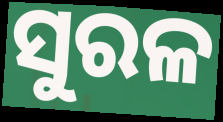
ସୁରଳ